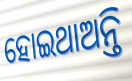
ହୋଇଥାଅନ୍ତି